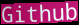
Github